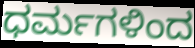
ಧರ್ಮಗಳಿಂದ